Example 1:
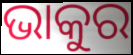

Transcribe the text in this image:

ଭାକୁର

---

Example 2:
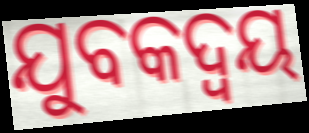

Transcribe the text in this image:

ଯୁବକଦ୍ୱୟ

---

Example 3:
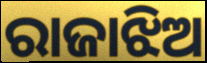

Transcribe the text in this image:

ରାଜାଝିଅ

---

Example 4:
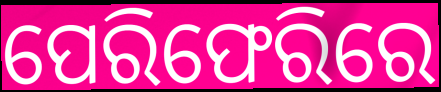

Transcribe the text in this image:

ପେରିଫେରିରେ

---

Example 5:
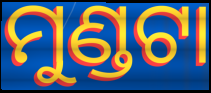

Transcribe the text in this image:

ମୁଣ୍ଡଟା